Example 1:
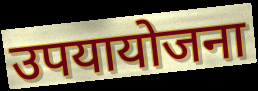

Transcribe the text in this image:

उपयायोजना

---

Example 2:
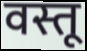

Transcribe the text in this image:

वस्तू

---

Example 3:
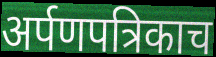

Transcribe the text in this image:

अर्पणपत्रिकाच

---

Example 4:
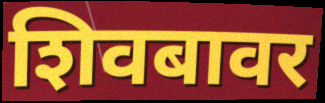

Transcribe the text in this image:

शिवबावर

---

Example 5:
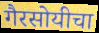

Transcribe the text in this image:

गैरसोयीचा